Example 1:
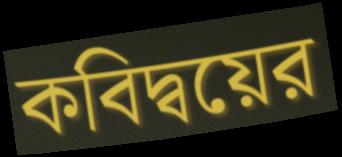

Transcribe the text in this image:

কবিদ্বয়ের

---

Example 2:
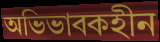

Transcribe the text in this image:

অভিভাবকহীন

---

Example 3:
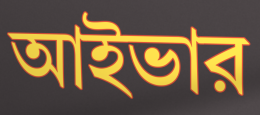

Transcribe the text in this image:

আইভার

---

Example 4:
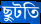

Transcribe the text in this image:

ছুটতি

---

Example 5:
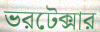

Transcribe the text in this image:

ভরটেক্সার